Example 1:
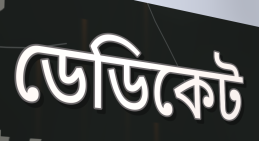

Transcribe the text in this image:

ডেডিকেট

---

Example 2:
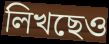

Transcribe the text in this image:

লিখছেও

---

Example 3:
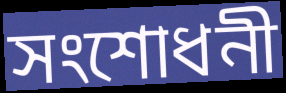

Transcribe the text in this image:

সংশোধনী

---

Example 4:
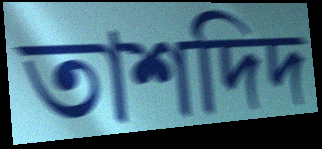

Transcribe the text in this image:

তাশদিদ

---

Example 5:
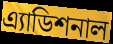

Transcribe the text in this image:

এ্যাডিশনাল